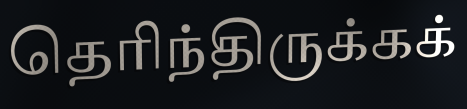
தெரிந்திருக்கக்